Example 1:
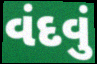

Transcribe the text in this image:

વંદવું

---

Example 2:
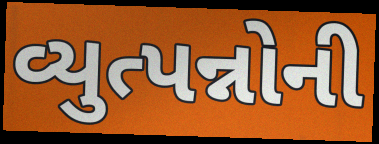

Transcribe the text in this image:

વ્યુત્પન્નોની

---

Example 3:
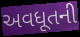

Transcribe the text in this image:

અવધૂતની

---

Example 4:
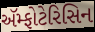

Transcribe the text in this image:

ઍમ્ફોટેરિસિન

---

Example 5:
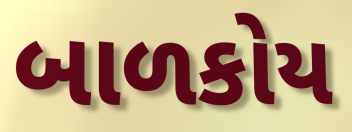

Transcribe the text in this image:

બાળકોય